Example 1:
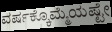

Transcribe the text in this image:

ವರ್ಷಕ್ಕೊಮ್ಮೆಯಷ್ಟೇ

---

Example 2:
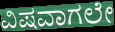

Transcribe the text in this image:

ವಿಷವಾಗಲೇ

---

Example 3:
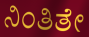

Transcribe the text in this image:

ನಿಂತಿತೇ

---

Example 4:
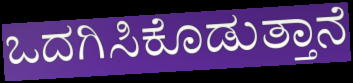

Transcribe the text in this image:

ಒದಗಿಸಿಕೊಡುತ್ತಾನೆ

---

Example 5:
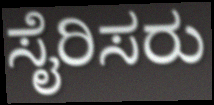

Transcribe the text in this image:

ಸೈರಿಸರು